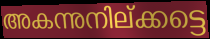
അകന്നുനില്ക്കട്ടെ